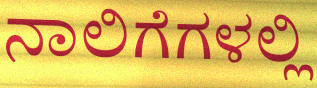
ನಾಲಿಗೆಗಳಲ್ಲಿ